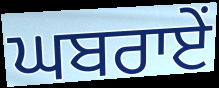
ਘਬਰਾਏਂ